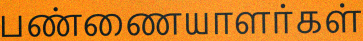
பண்ணையாளர்கள்